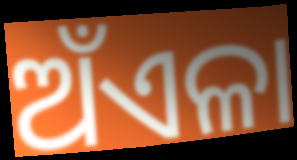
ଅଁଏଳା